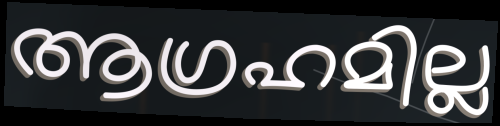
ആഗ്രഹമില്ല